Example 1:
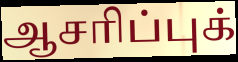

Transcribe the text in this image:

ஆசரிப்புக்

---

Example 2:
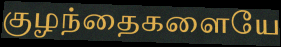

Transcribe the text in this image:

குழந்தைகளையே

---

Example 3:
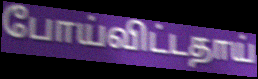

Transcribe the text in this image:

போய்விட்டதாய்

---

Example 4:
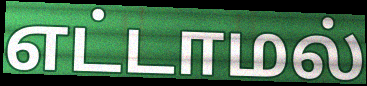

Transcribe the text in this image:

எட்டாமல்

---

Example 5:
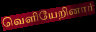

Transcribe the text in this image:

வெளியேறினார்